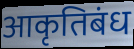
आकृतिबंध